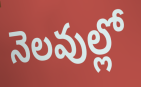
నెలవుల్లో